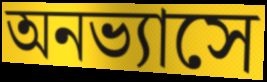
অনভ্যাসে